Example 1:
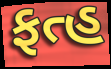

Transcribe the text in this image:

ફત્હ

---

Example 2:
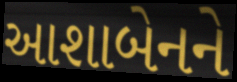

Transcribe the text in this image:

આશાબેનને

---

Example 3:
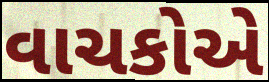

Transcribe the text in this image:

વાચકોએ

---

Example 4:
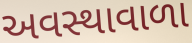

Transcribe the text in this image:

અવસ્થાવાળા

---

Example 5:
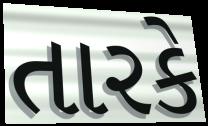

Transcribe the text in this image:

તારકે